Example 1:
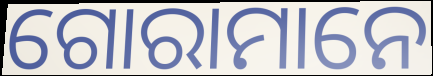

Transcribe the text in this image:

ଗୋରାମାନେ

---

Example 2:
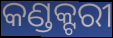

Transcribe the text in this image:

କଣ୍ଡକ୍ଟରୀ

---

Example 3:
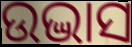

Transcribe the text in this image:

ଉଦ୍ଭାସ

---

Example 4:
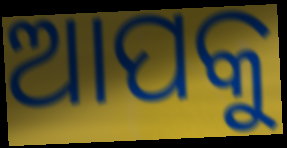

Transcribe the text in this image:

ଆପକୁ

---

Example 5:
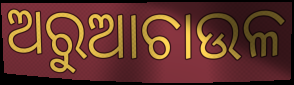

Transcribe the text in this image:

ଅରୁଆଚାଉଳ